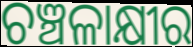
ଚଞ୍ଚଳାକ୍ଷୀର